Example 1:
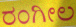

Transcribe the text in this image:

ರಂಗೀಲ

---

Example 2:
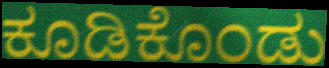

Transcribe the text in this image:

ಕೂಡಿಕೊಂಡು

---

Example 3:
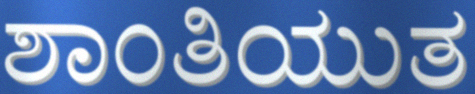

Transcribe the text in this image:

ಶಾಂತಿಯುತ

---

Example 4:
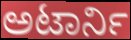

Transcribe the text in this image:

ಅಟಾರ್ನಿ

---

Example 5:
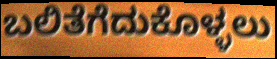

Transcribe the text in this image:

ಬಲಿತೆಗೆದುಕೊಳ್ಳಲು